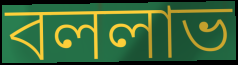
বললাভ